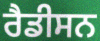
ਰੈਡੀਸਨ